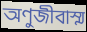
অণুজীবাস্ম